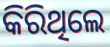
କିରିଥିଲେ